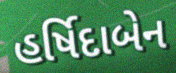
હર્ષિદાબેન